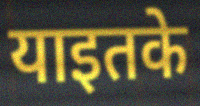
याइतके